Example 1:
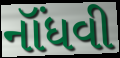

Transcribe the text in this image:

નૉંધવી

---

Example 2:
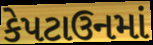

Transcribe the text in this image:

કેપટાઉનમાં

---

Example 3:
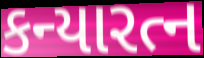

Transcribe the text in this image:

કન્યારત્ન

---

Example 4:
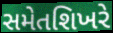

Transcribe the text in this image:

સમેતશિખરે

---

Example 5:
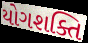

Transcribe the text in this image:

યોગશક્તિ